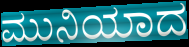
ಮುನಿಯಾದ